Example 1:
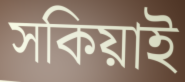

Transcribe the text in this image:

সকিয়াই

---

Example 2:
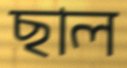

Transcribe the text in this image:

ছাল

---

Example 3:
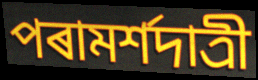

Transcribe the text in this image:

পৰামৰ্শদাত্ৰী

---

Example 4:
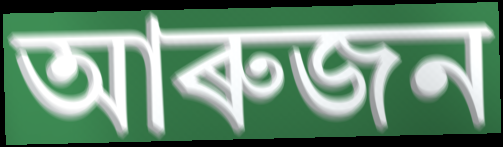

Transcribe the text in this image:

আৰুজন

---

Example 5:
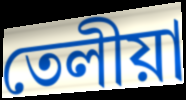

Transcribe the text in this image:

তেলীয়া